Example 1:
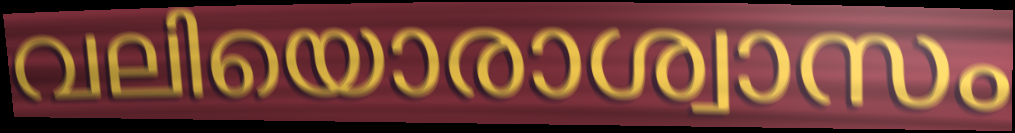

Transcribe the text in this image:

വലിയൊരാശ്വാസം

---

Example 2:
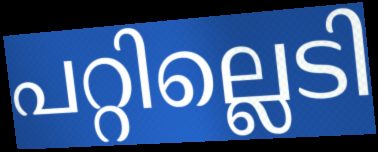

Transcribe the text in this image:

പറ്റില്ലെടി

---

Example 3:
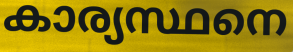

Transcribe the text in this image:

കാര്യസ്ഥനെ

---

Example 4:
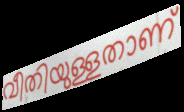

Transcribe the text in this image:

വീതിയുള്ളതാണ്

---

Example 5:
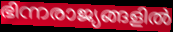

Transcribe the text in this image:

ഭിന്നരാജ്യങ്ങളിൽ